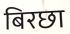
बिरछा